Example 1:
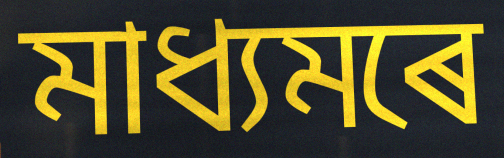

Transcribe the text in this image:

মাধ্যমৰে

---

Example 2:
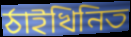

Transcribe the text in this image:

ঠাইখিনিত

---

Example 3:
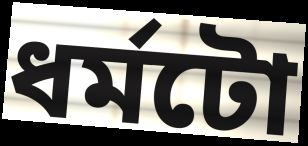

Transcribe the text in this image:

ধৰ্মটো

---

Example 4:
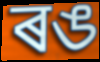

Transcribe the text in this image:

ৰঙ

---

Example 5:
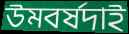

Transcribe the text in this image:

উমবৰ্ষদাই